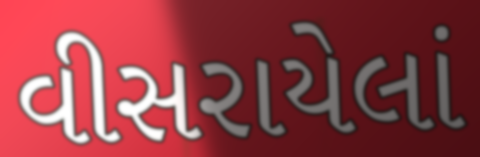
વીસરાયેલાં